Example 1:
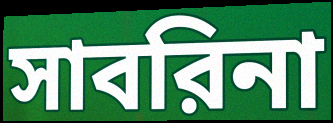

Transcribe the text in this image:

সাবরিনা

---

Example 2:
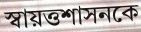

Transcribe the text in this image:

স্বায়ত্তশাসনকে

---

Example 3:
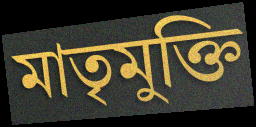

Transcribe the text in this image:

মাতৃমুক্তি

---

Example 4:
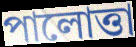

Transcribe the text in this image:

পালোত্তা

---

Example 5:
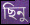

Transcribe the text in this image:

ছিনু